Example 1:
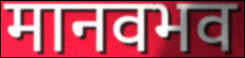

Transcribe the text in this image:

मानवभव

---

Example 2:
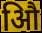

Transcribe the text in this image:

औि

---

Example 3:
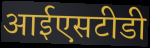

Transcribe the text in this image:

आईएसटीडी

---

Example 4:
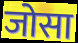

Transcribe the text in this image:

जोसा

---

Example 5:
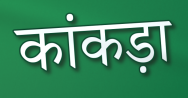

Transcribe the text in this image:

कांकड़ा